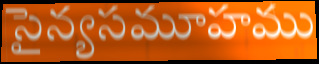
సైన్యసమూహము